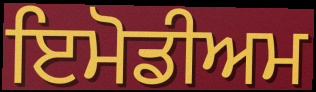
ਇਮੋਡੀਅਮ